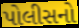
પોલીસનો